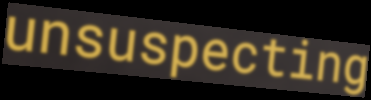
unsuspecting